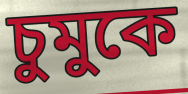
চুমুকে